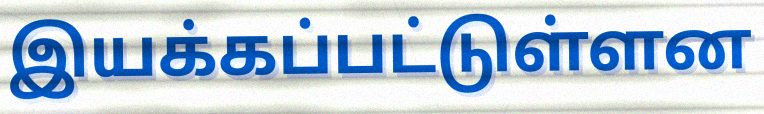
இயக்கப்பட்டுள்ளன